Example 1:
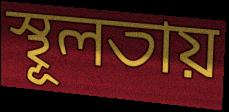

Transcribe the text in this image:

স্থূলতায়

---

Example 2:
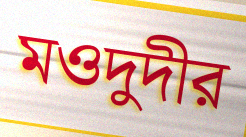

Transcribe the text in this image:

মওদুদীর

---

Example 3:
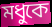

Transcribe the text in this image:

মধুকে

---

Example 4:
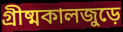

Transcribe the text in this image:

গ্রীষ্মকালজুড়ে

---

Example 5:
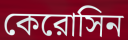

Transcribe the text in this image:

কেরোসিন